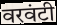
वरवंटी